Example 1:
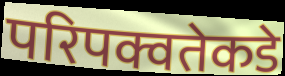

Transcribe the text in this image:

परिपक्वतेकडे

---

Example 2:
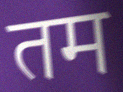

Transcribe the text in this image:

तम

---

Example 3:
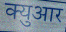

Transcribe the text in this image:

क्युआर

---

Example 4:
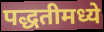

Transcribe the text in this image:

पद्धतीमध्ये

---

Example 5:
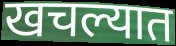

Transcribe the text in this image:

खचल्यात